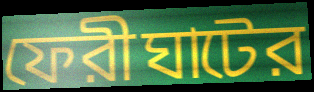
ফেরীঘাটের